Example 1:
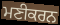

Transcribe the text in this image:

ਮਣੀਕਰਨ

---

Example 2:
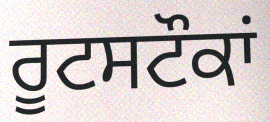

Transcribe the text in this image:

ਰੂਟਸਟੌਕਾਂ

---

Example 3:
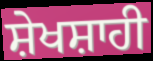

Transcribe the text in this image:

ਸ਼ੇਖਸ਼ਾਹੀ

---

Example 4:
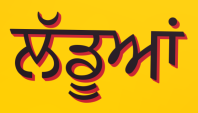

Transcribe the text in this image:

ਲੱਡੂਆਂ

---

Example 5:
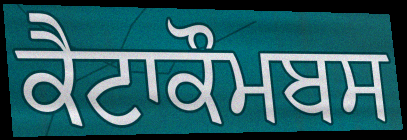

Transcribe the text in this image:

ਕੈਟਾਕੌਮਬਸ